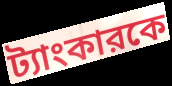
ট্যাংকারকে